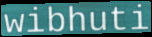
wibhuti